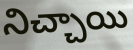
నిచ్చాయి